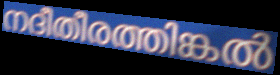
നദീതീരത്തിങ്കൽ